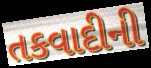
તકવાદીની